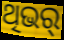
ଥିଭର୍